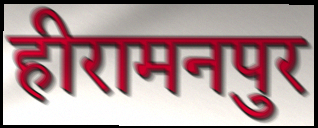
हीरामनपुर